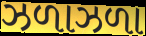
ઝળાઝળા